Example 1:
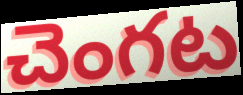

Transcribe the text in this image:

చెంగట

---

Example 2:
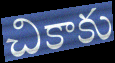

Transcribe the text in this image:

చికాకు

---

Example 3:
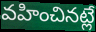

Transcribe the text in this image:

వహించినట్లే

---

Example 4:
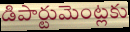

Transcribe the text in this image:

డిపార్టుమెంట్లకు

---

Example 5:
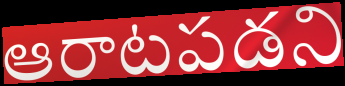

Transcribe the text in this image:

ఆరాటపడని